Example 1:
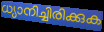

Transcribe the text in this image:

ധ്യാനിച്ചിരിക്കുക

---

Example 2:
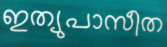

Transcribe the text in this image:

ഇത്യുപാസീത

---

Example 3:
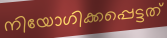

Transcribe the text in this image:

നിയോഗിക്കപ്പെട്ടത്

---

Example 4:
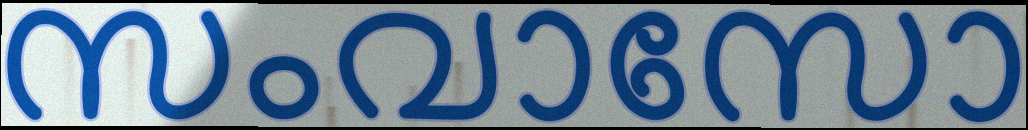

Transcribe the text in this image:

സംവാസോ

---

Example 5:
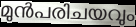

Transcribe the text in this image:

മുൻപരിചയവും